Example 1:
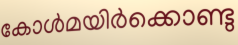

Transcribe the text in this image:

കോൾമയിർക്കൊണ്ടു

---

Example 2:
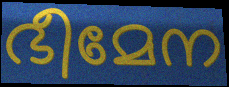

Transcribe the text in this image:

ഭീമേന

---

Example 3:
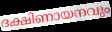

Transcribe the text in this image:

ദക്ഷിണായനവും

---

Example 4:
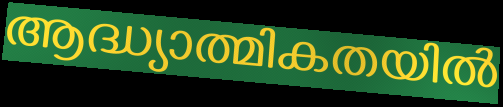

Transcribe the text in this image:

ആദ്ധ്യാത്മികതയിൽ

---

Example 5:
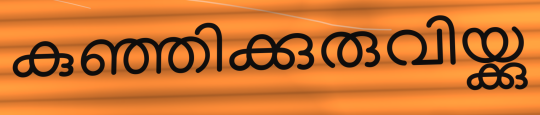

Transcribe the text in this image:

കുഞ്ഞിക്കുരുവിയ്ക്കു